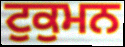
ਟੁਕੁਮਨ